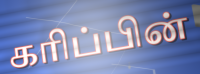
கரிப்பின்